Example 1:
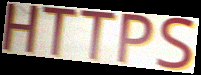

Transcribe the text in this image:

HTTPS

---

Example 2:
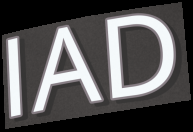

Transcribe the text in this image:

IAD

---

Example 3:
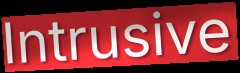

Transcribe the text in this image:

Intrusive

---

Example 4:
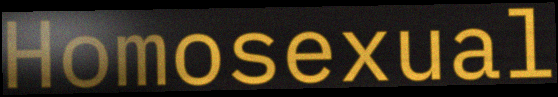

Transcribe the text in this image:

Homosexual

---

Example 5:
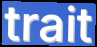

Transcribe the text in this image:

trait